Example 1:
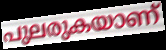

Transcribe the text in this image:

പുലരുകയാണ്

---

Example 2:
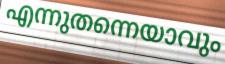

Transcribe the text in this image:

എന്നുതന്നെയാവും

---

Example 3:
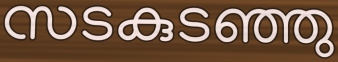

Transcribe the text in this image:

സടകുടഞ്ഞു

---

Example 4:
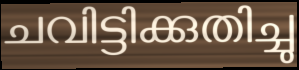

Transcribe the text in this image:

ചവിട്ടിക്കുതിച്ചു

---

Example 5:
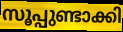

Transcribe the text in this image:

സൂപ്പുണ്ടാക്കി